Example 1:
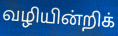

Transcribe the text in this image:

வழியின்றிக்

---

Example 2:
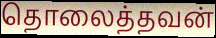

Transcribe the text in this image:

தொலைத்தவன்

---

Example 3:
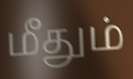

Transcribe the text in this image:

மீதும்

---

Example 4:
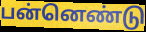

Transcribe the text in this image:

பன்னெண்டு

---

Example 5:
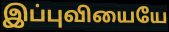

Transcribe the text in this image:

இப்புவியையே